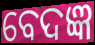
ବେଦଜ୍ଞ